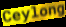
Ceylong